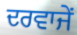
ਦਰਵਾਜੇਂ